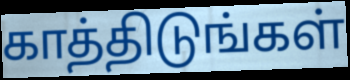
காத்திடுங்கள்